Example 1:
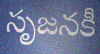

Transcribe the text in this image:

సృజనకీ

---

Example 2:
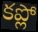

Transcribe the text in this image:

కప్లో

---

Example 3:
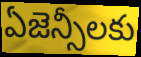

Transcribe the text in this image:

ఏజెన్సీలకు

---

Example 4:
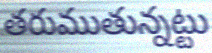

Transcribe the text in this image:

తరుముతున్నట్టు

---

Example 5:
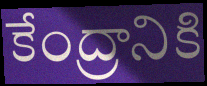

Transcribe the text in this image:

కేంద్రానికి